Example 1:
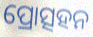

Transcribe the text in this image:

ପ୍ରୋତ୍ସହନ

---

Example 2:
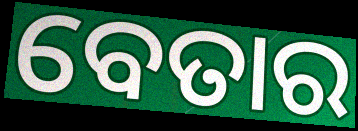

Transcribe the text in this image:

ବେତାର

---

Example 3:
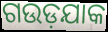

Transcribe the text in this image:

ଗଉଡ଼ଯାକ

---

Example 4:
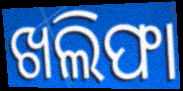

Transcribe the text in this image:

ଖଲିଫା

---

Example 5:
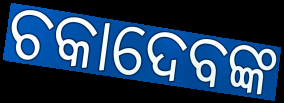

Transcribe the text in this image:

ଚକାଦେବଙ୍କ